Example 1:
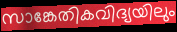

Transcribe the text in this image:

സാങ്കേതികവിദ്യയിലും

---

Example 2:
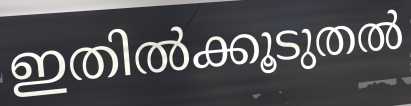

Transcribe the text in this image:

ഇതിൽക്കൂടുതൽ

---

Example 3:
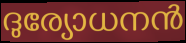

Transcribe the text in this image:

ദുര്യോധനൻ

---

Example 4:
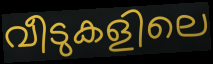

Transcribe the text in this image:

വീടുകളിലെ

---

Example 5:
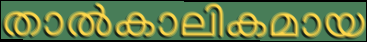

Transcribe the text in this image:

താൽകാലികമായ